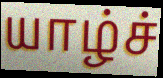
யாழ்ச்